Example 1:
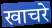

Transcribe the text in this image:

खाचरे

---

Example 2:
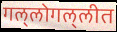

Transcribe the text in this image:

गल्लोगल्लीत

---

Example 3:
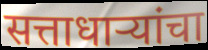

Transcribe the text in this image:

सत्ताधाऱ्यांचा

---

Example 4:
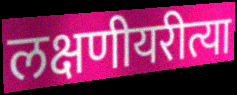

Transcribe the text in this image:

लक्षणीयरीत्या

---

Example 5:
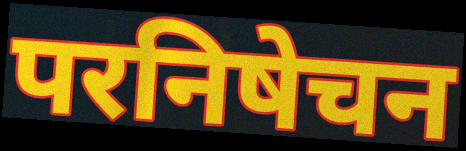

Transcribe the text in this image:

परनिषेचन